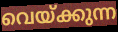
വെയ്ക്കുന്ന